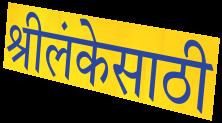
श्रीलंकेसाठी